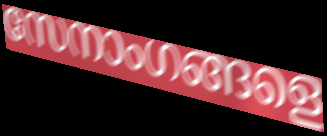
സേനാംഗങ്ങളെ